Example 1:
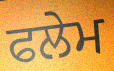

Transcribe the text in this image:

ਫਲੇਮ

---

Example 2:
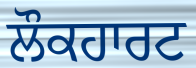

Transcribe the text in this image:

ਲੌਕਹਾਰਟ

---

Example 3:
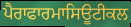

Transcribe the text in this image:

ਪੈਰਾਫਾਰਮਾਸਿਊਟੀਕਲ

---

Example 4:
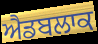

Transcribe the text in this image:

ਐਡਬਲਾਕ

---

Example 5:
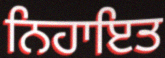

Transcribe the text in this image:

ਨਿਹਾਇਤ